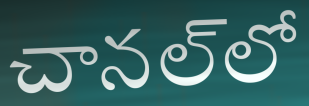
చానల్‌లో